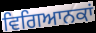
ਵਿਗਿਆਨਕਾਂ